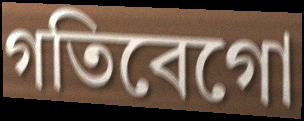
গতিবেগো